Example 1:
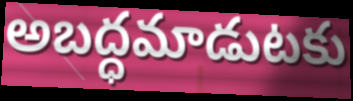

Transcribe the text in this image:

అబద్ధమాడుటకు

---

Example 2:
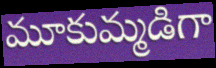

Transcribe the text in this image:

మూకుమ్మడిగా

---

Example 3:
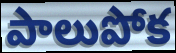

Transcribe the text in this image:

పాలుపోక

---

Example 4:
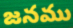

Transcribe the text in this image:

జనము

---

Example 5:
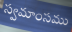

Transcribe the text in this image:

స్వమాంసము